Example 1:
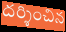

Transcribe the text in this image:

దర్శించిన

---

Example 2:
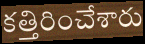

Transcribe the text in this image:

కత్తిరించేశారు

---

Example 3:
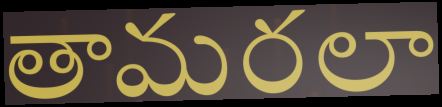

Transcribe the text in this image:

తామరలా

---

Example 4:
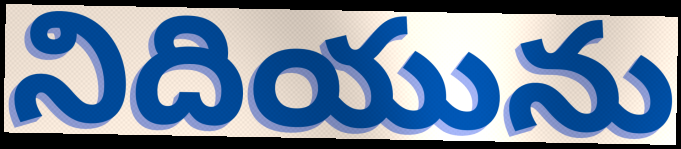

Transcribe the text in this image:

నిదియును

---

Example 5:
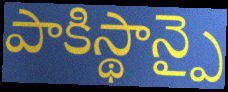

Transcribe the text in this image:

పాకిస్థాన్పై